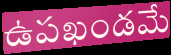
ఉపఖండమే